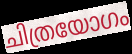
ചിത്രയോഗം